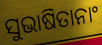
ସୁଭାଷିତାନାଂ